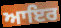
ਆਇਰ